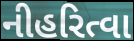
નીહરિત્વા